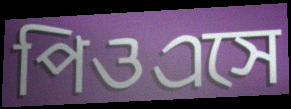
পিওএসে